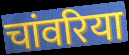
चांवरिया